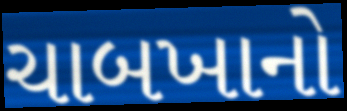
ચાબખાનો